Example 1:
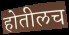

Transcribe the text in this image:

होतीलच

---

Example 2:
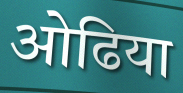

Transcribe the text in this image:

ओढिया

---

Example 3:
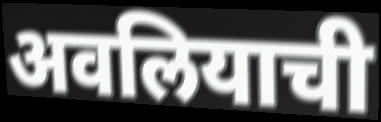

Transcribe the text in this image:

अवलियाची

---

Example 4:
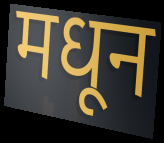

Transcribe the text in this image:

मधून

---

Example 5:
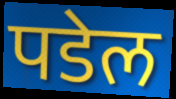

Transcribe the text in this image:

पडेल